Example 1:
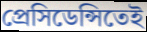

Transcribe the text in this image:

প্রেসিডেন্সিতেই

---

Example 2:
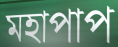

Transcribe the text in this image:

মহাপাপ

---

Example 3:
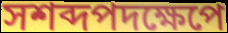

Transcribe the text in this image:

সশব্দপদক্ষেপে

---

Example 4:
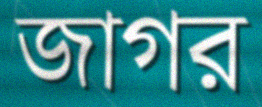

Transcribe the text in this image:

জাগর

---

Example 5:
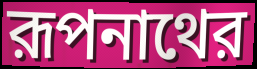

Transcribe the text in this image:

রূপনাথের